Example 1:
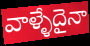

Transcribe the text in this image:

వాళ్ళేదైనా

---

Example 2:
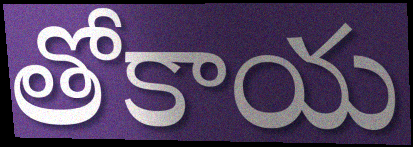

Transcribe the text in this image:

తోకాయ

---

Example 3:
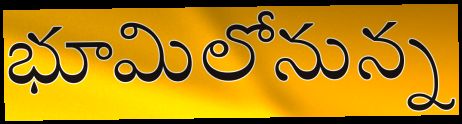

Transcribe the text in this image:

భూమిలోనున్న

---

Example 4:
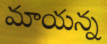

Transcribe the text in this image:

మాయన్న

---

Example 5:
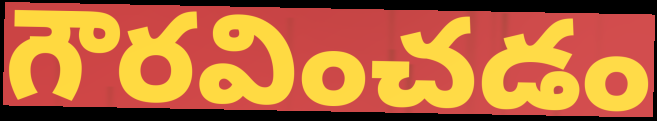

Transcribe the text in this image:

గౌరవించడం